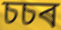
চচৰ